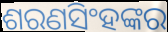
ଶରଣସିଂହଙ୍କର